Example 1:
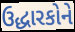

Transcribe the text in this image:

ઉદ્ધારકોને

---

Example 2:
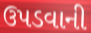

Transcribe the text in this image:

ઉપડવાની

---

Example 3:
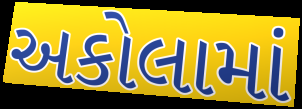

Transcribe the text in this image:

અકોલામાં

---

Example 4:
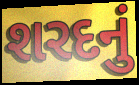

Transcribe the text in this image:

શરદનું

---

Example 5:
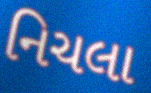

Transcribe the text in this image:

નિચલા